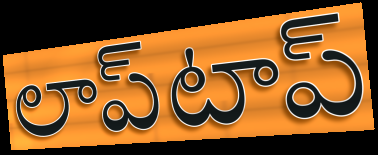
లాప్‌టాప్